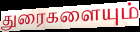
துரைகளையும்